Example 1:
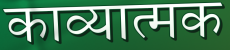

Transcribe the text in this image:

काव्यात्मक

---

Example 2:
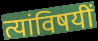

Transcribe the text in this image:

त्यांविषयीं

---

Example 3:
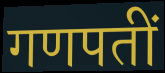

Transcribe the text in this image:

गणपतीं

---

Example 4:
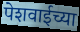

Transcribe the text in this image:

पेशवाईच्या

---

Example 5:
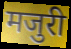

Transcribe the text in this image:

मजुरी